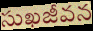
సుఖజీవన